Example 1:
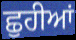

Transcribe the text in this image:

ਛੁਹੀਆਂ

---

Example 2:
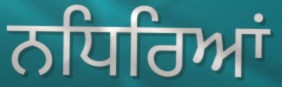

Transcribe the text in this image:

ਨਧਿਰਿਆਂ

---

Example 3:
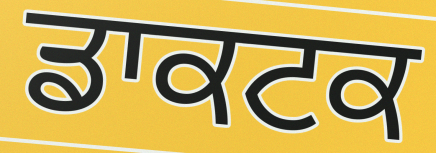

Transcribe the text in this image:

ਡਾਕਟਕ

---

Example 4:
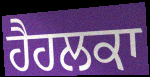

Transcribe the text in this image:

ਹੈਹਲਕਾ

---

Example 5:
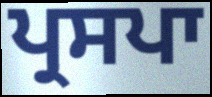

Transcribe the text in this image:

ਪ੍ਰਸਪਾ